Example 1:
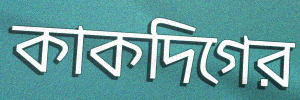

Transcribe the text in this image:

কাকদিগের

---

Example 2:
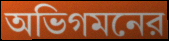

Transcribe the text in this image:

অভিগমনের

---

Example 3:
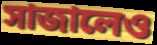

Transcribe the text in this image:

সাজালেও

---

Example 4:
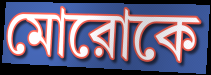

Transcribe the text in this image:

মোরোকে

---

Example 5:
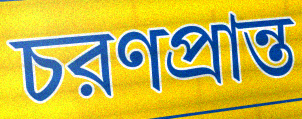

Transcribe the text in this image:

চরণপ্রান্ত